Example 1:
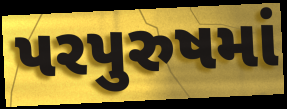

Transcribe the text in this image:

પરપુરુષમાં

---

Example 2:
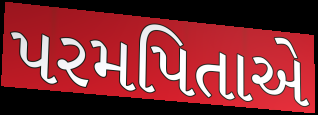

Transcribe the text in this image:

પરમપિતાએ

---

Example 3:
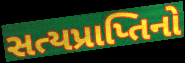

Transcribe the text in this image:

સત્યપ્રાપ્તિનો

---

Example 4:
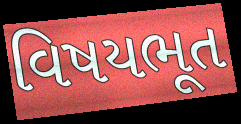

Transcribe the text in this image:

વિષયભૂત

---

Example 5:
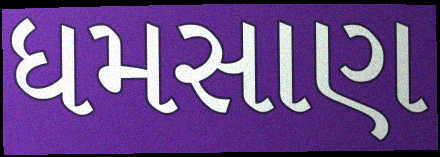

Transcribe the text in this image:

ધમસાણ